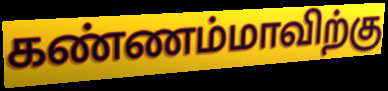
கண்ணம்மாவிற்கு